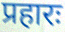
प्रहारः